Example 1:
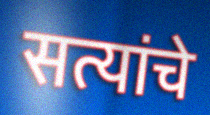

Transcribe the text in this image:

सत्यांचे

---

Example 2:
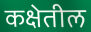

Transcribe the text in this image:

कक्षेतील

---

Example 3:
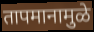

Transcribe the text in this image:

तापमानामुळे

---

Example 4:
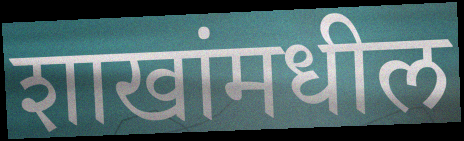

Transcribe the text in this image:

शाखांमधील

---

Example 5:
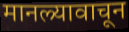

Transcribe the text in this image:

मानल्यावाचून